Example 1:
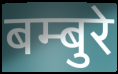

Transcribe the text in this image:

बम्बुरे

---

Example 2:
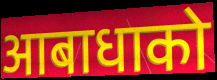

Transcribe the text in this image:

आबाधाको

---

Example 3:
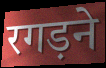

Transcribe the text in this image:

रगड़ने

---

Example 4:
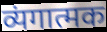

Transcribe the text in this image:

व्यंगात्मक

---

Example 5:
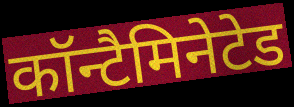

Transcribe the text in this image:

कॉन्टैमिनेटेड